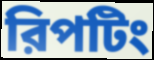
রিপটিং